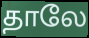
தாலே